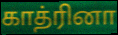
காத்ரினா